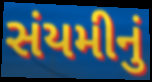
સંયમીનું